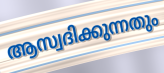
ആസ്വദിക്കുന്നതും